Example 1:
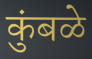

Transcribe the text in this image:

कुंबळे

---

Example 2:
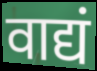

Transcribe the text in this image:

वाद्यं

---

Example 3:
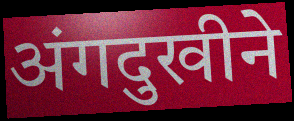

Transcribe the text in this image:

अंगदुखीने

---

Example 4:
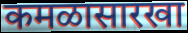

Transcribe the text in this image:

कमळासारखा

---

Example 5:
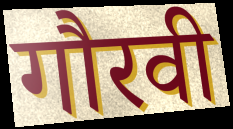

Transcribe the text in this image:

गौरवी